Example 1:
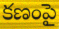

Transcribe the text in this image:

కణంపై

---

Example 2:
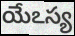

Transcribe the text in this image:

యేఽస్య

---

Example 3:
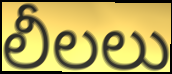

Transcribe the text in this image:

లీలలు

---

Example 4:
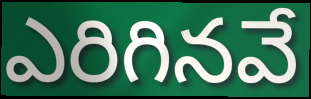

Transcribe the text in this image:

ఎరిగినవే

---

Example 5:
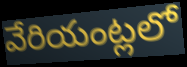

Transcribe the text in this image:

వేరియంట్లలో